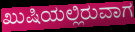
ಖುಷಿಯಲ್ಲಿರುವಾಗ